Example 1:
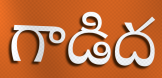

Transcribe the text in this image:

గాడిద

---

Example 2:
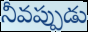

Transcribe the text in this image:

నీవప్పుడు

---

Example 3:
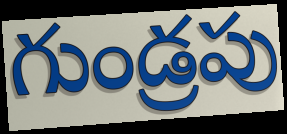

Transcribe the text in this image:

గుండ్రపు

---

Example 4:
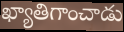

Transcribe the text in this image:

ఖ్యాతిగాంచాడు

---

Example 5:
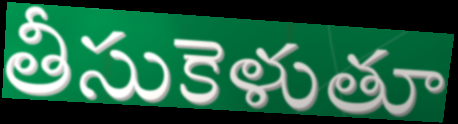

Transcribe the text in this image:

తీసుకెళుతూ